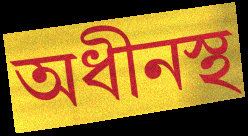
অধীনস্থ